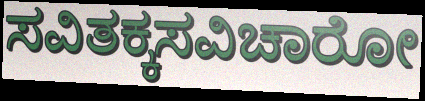
ಸವಿತಕ್ಕಸವಿಚಾರೋ